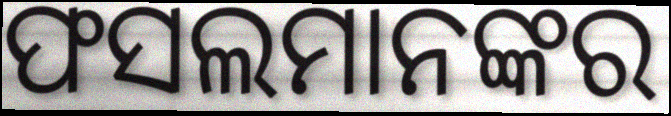
ଫସଲମାନଙ୍କର